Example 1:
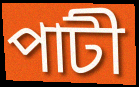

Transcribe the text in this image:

পাটী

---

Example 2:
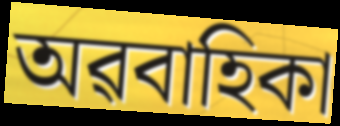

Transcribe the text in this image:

অৱবাহিকা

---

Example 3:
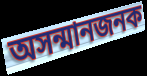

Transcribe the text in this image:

অসন্মানজনক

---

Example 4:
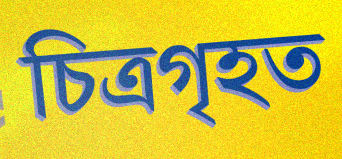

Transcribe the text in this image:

চিত্ৰগৃহত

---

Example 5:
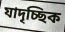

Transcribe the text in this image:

যাদৃচ্ছিক